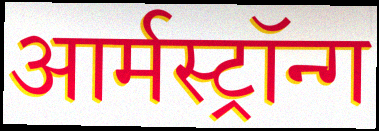
आर्मस्ट्रॉन्ग